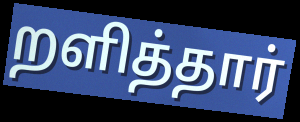
றளித்தார்